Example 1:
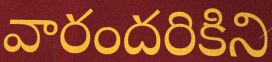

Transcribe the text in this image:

వారందరికిని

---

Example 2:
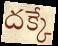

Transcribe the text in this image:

దక్కే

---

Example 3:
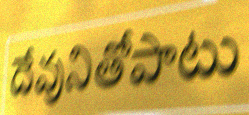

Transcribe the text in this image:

దేవునితోపాటు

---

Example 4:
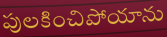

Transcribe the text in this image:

పులకించిపోయాను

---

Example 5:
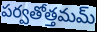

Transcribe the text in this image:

పర్వతోత్తమమ్